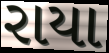
રાયા